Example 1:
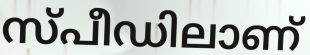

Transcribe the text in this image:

സ്പീഡിലാണ്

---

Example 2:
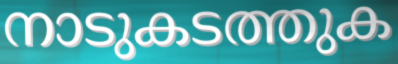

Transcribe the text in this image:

നാടുകടത്തുക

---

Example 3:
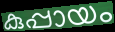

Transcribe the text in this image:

കുപ്പായം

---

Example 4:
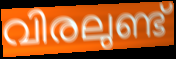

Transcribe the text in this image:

വിരലുണ്ട്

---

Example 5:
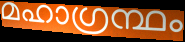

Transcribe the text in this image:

മഹാഗ്രന്ഥം